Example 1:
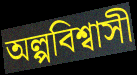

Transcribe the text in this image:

অল্পবিশ্বাসী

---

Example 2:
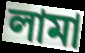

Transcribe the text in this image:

লামা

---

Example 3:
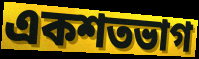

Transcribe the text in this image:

একশতভাগ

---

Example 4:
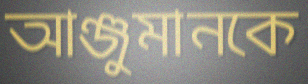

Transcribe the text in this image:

আঞ্জুমানকে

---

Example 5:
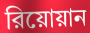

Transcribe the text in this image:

রিয়োয়ান